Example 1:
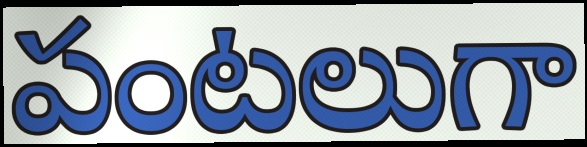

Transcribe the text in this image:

పంటలుగా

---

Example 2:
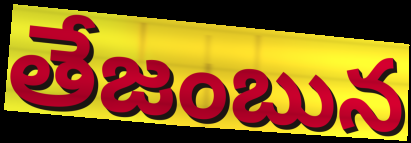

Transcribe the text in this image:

తేజంబున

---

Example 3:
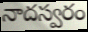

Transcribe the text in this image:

నాదస్వరం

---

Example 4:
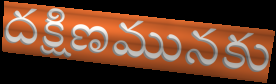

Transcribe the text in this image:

దక్షిణమునకు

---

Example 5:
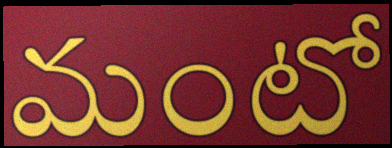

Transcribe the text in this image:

మంటో